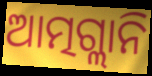
ଆତ୍ମଗ୍ଲାନି